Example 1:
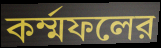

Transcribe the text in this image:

কর্ম্মফলের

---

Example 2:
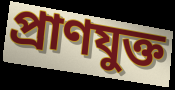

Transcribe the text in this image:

প্রাণযুক্ত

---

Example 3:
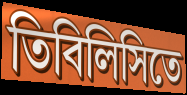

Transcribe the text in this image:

তিবিলিসিতে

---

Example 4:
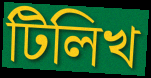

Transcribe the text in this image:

টিলিখ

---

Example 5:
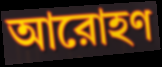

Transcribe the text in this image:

আরোহণ